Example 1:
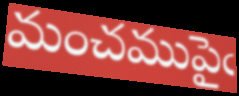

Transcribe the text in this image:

మంచముపైఁ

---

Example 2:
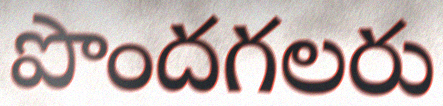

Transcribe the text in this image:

పొందగలరు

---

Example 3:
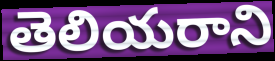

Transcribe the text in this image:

తెలియరాని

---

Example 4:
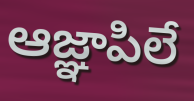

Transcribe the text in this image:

ఆజ్ఞాపిలే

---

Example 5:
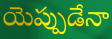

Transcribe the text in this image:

యెప్పుడేనా